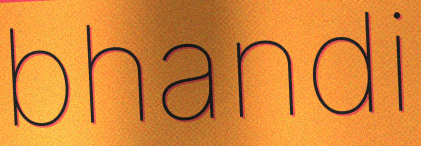
bhandi